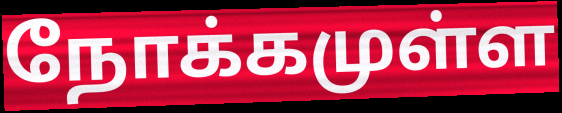
நோக்கமுள்ள